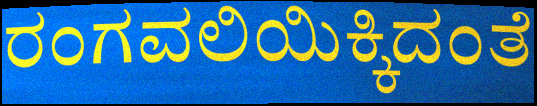
ರಂಗವಲಿಯಿಕ್ಕಿದಂತೆ